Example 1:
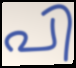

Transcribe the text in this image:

പി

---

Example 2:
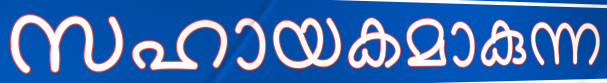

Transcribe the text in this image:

സഹായകമാകുന്ന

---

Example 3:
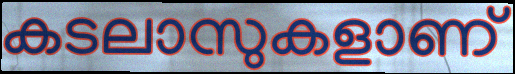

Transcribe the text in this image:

കടലാസുകളാണ്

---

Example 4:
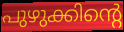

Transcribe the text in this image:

പുഴുക്കിന്റെ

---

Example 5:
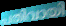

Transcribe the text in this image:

പതിവായി